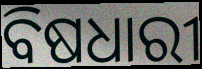
ବିଷଧାରୀ